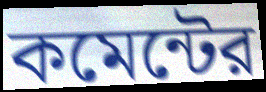
কমেন্টের